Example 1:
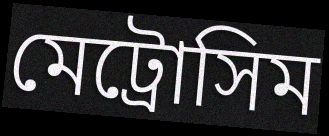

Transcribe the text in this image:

মেট্রোসিম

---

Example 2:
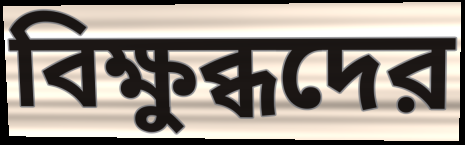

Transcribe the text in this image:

বিক্ষুব্ধদের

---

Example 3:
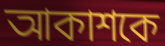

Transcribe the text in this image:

আকাশকে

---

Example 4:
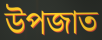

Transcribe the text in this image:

উপজাত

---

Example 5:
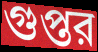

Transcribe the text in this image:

গুপ্তর